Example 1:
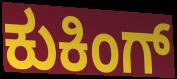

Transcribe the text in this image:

ಕುಕಿಂಗ್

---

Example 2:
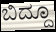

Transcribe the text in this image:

ಬಿದ್ದೂ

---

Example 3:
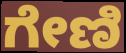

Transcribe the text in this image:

ಗೇಣಿ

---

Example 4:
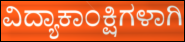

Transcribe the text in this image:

ವಿದ್ಯಾಕಾಂಕ್ಷಿಗಳಾಗಿ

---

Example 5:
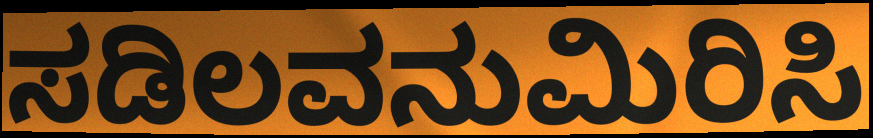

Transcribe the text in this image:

ಸಡಿಲವನುಮಿರಿಸಿ